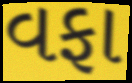
વફા